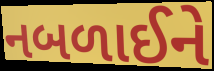
નબળાઈને